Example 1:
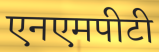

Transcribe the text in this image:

एनएमपीटी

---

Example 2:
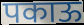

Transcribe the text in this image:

पकाऊ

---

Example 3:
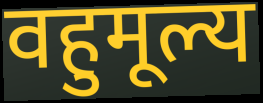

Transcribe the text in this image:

वहुमूल्य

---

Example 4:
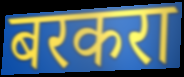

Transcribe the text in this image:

बरकरा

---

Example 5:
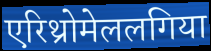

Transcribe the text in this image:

एरिथ्रोमेललगिया